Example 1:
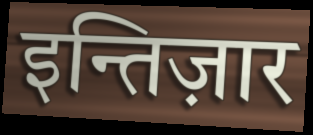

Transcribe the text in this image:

इन्तिज़ार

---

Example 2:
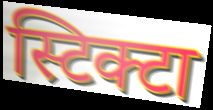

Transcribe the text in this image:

स्टिक्टा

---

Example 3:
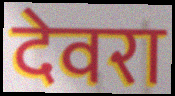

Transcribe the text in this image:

देवरा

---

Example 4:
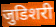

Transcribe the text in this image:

जुडिशरी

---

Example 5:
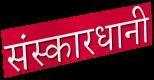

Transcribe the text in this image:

संस्कारधानी